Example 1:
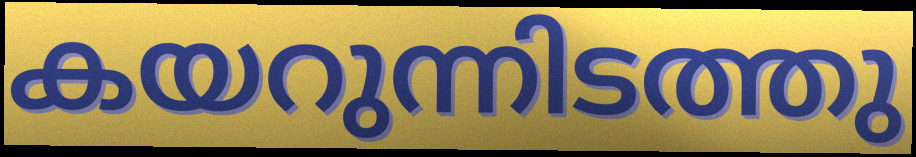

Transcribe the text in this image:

കയറുന്നിടത്തു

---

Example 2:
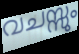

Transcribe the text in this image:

വചസ്സും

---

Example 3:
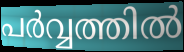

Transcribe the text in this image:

പർവ്വത്തിൽ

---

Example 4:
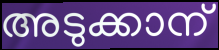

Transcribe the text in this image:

അടുക്കാന്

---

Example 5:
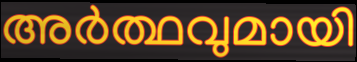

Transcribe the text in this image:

അർത്ഥവുമായി